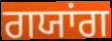
ਗਯਾਂਗ